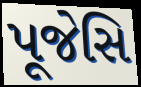
પૂજેસિ